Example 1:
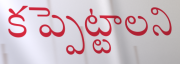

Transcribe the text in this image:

కప్పెట్టాలని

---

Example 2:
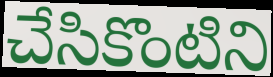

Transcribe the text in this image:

చేసికొంటిని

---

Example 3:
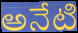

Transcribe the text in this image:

అనేటి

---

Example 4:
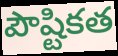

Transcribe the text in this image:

పౌష్టికత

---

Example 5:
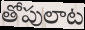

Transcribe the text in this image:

తోపులాట